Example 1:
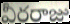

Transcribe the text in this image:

వీరరాజు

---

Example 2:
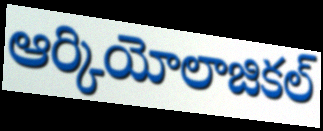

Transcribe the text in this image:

ఆర్కియోలాజికల్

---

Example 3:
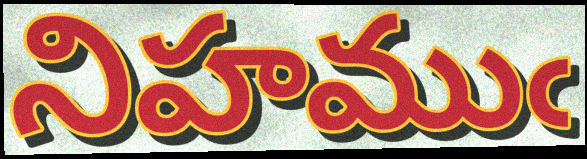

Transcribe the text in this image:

నిహముఁ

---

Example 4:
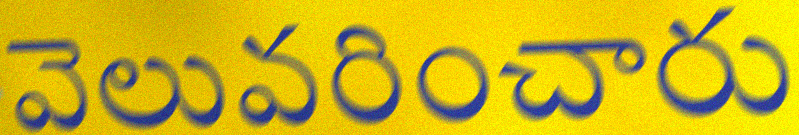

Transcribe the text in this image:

వెలువరించారు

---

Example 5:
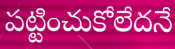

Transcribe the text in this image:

పట్టించుకోలేదనే